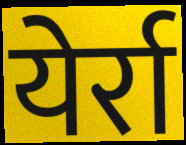
येर्रा